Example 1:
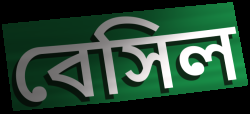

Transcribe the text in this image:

বেসিল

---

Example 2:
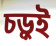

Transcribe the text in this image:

চড়ুই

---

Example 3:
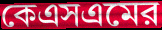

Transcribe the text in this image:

কেএসএমের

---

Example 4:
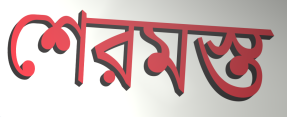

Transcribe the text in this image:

শেরমস্ত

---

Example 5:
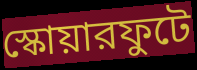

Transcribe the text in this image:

স্কোয়ারফুটে